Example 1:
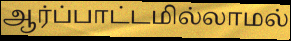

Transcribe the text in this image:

ஆர்ப்பாட்டமில்லாமல்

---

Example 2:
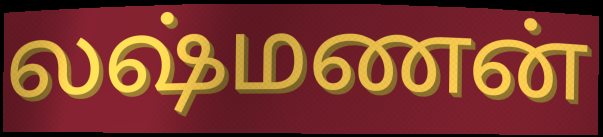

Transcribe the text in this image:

லஷ்மணன்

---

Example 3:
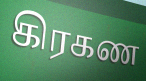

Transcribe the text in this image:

கிரகண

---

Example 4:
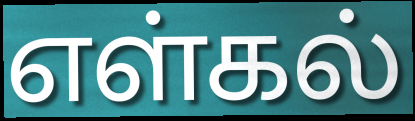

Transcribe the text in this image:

எள்கல்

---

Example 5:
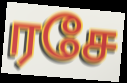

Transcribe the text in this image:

ரசே